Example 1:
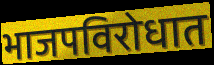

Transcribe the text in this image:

भाजपविरोधात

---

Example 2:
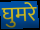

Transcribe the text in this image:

घुमरे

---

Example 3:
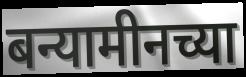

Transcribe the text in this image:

बन्यामीनच्या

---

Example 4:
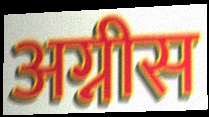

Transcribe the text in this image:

अग्नीस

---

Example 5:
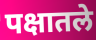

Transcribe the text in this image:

पक्षातले